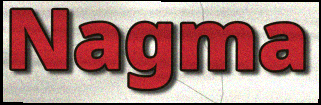
Nagma